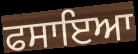
ਫਸਾਇਆ